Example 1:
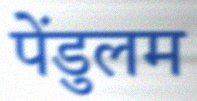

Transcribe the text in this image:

पेंडुलम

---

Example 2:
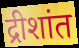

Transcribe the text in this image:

द्रीशांत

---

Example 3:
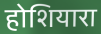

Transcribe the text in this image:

होशियारा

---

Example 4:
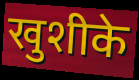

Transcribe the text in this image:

खुशीके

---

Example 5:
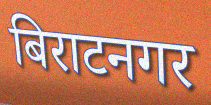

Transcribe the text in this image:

बिराटनगर